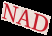
NAD